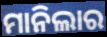
ମାନିଲାର